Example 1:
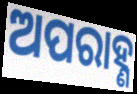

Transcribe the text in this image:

ଅପରାହ୍ଣ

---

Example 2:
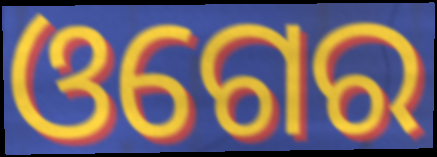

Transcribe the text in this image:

ଓଗେର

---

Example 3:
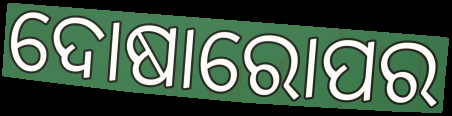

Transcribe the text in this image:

ଦୋଷାରୋପର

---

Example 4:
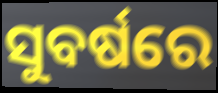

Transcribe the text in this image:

ସୁବର୍ଷରେ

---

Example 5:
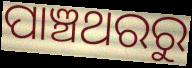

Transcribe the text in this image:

ପାଞ୍ଚଥରରୁ